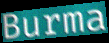
Burma